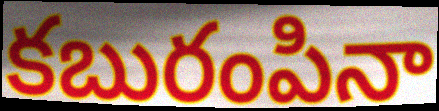
కబురంపినా